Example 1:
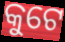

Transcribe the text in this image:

କୁଟେ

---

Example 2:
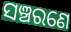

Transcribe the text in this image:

ସଞ୍ଚରଣେ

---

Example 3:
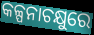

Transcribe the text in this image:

କଳ୍ପନାଚକ୍ଷୁରେ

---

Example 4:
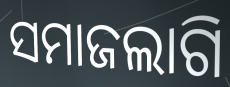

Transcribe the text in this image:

ସମାଜଲାଗି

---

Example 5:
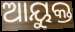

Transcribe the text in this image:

ଆୟୁକ୍ତ